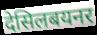
देसिलबयनर